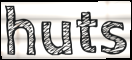
huts